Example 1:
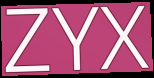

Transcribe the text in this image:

ZYX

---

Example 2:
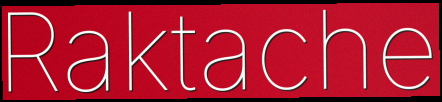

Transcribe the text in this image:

Raktache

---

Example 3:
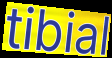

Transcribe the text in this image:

tibial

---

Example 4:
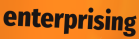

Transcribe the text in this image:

enterprising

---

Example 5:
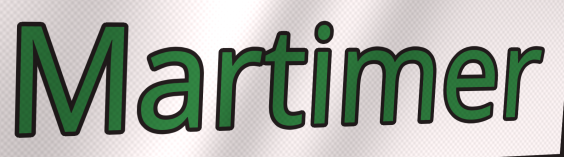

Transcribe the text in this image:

Martimer